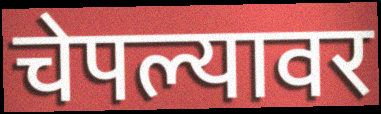
चेपल्यावर